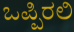
ಒಪ್ಪಿರಲಿ